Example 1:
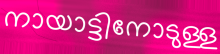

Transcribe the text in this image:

നായാട്ടിനോടുള്ള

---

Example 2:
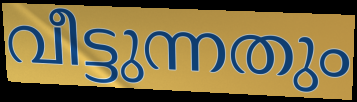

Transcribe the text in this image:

വീട്ടുന്നതും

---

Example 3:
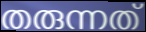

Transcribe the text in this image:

തരുന്നത്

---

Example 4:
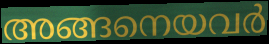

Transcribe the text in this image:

അങ്ങനെയവർ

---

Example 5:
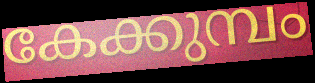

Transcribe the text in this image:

കേക്കുമ്പം